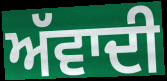
ਅੱਵਾਦੀ